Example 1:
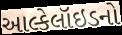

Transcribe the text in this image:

આલ્કેલૉઇડનો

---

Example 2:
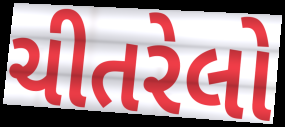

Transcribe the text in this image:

ચીતરેલો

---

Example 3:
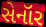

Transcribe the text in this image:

સેનૉર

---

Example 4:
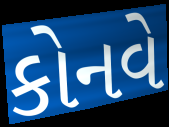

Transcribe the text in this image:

કોનવે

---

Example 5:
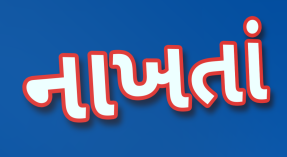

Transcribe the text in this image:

નાખતાં